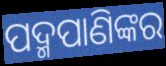
ପଦ୍ମପାଣିଙ୍କର